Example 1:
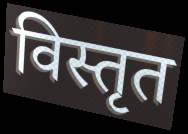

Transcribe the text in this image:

विस्तृत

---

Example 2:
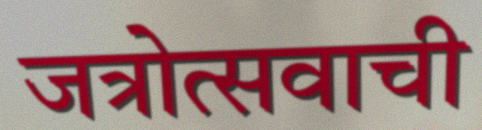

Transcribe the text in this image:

जत्रोत्सवाची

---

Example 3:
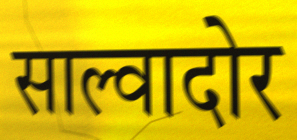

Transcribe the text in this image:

साल्वादोर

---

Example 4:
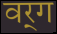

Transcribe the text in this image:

वर्ग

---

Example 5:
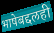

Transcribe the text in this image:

भाषेबद्दलही